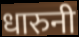
धारुनी